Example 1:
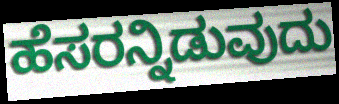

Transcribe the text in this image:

ಹೆಸರನ್ನಿಡುವುದು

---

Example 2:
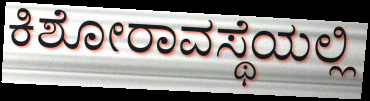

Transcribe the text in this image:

ಕಿಶೋರಾವಸ್ಥೆಯಲ್ಲಿ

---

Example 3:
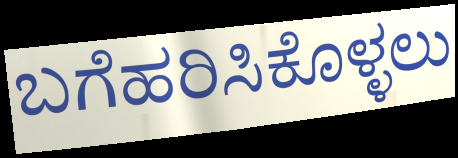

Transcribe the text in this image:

ಬಗೆಹರಿಸಿಕೊಳ್ಳಲು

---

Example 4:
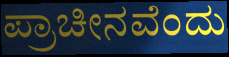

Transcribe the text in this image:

ಪ್ರಾಚೀನವೆಂದು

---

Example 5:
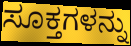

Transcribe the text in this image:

ಸೂಕ್ತಗಳನ್ನು